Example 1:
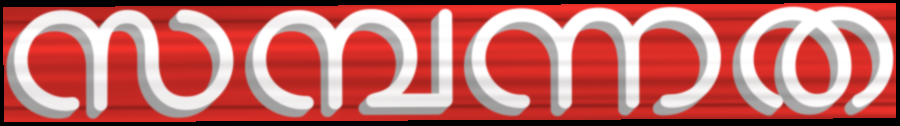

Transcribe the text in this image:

സമ്പന്നത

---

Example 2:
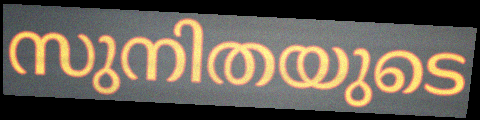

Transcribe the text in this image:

സുനിതയുടെ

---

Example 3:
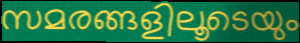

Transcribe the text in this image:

സമരങ്ങളിലൂടെയും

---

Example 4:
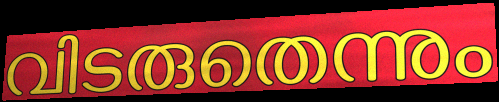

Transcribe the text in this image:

വിടരുതെന്നും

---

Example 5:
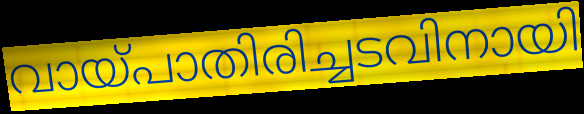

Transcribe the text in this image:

വായ്പാതിരിച്ചടവിനായി